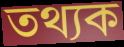
তথ্যক